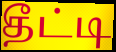
தீட்டி